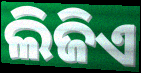
ଲିଜିଏ